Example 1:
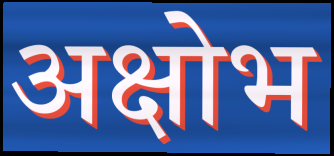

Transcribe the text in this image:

अक्षोभ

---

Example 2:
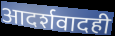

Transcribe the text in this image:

आदर्शवादही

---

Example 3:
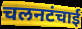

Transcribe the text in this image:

चलनटंचाई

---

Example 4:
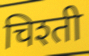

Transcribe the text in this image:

चिश्ती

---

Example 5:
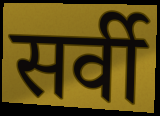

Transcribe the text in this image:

सर्वी